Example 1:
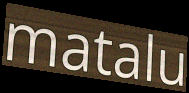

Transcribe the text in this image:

matalu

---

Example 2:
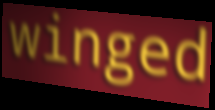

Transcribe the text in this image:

winged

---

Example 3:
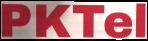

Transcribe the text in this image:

PKTel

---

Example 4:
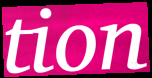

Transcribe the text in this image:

tion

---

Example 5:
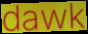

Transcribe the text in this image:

dawk